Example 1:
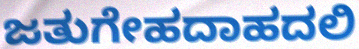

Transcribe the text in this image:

ಜತುಗೇಹದಾಹದಲಿ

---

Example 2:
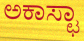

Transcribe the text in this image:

ಅಕಾಸ್ಟಾ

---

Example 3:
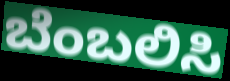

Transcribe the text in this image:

ಬೆಂಬಲಿಸಿ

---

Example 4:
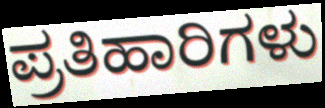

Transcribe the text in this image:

ಪ್ರತಿಹಾರಿಗಳು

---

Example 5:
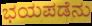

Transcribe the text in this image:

ಭಯಪಡೆನು